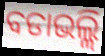
ବଡାଭଲ୍ଲି